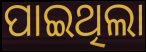
ପାଇଥିଲା